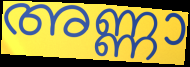
അണ്ണാ